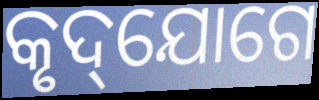
କୃଦ୍‌ଯୋଗେ